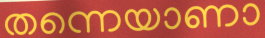
തന്നെയാണാ